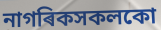
নাগৰিকসকলকো